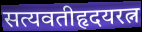
सत्यवतीहृदयरत्न